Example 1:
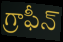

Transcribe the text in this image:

గ్రాఫీన్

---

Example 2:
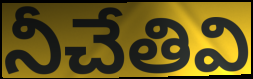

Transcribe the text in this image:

నీచేతివి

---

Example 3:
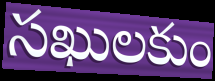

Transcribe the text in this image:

సఖులకుం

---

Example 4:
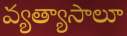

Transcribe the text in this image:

వ్యత్యాసాలూ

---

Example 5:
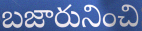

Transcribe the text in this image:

బజారునించి